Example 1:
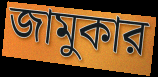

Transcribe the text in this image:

জামুকার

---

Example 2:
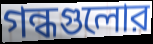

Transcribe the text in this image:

গন্ধগুলোর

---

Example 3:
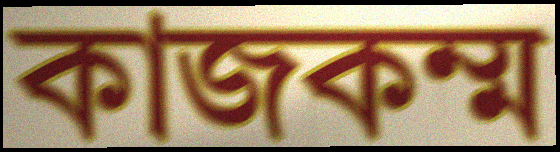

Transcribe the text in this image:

কাজকম্ম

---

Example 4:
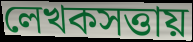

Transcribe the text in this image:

লেখকসত্তায়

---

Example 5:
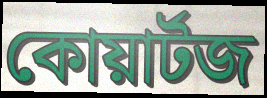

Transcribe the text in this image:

কোয়ার্টজ